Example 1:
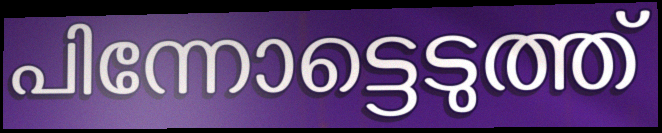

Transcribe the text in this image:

പിന്നോട്ടെടുത്ത്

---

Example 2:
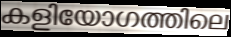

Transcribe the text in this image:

കളിയോഗത്തിലെ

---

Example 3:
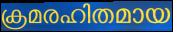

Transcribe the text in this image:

ക്രമരഹിതമായ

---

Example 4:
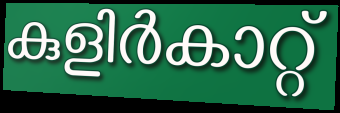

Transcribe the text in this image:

കുളിർകാറ്റ്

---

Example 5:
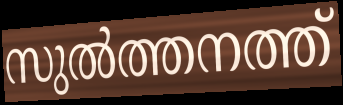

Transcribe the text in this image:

സുൽത്തനത്ത്